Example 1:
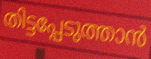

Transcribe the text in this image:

തിട്ടപ്പേടുത്താൻ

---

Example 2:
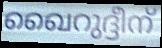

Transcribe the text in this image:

ഖൈറുദ്ദീന്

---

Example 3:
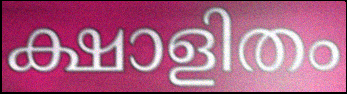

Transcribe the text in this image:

ക്ഷാളിതം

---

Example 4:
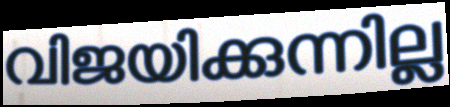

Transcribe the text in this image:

വിജയിക്കുന്നില്ല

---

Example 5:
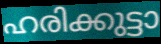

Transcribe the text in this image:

ഹരിക്കുട്ടാ